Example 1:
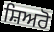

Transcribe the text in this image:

ਸ਼ਿਅਰੋ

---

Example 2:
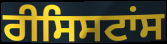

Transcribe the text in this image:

ਰੀਸਿਸਟਾਂਸ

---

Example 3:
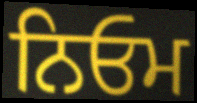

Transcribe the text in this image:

ਨਿਓਮ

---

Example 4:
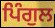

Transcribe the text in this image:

ਪਿੰਗੁਲ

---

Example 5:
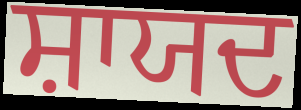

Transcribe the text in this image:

ਸ਼ਾਯਦ